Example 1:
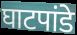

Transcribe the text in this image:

घाटपांडे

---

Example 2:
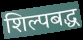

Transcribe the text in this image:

शिल्पबद्ध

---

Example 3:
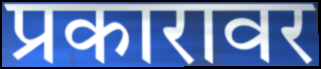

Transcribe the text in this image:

प्रकारावर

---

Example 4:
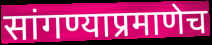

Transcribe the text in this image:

सांगण्याप्रमाणेच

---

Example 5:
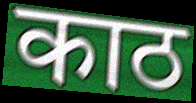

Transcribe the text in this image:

काठ